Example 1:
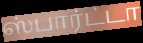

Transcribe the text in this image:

ஸ்பார்ட்டா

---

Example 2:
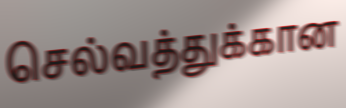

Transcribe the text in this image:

செல்வத்துக்கான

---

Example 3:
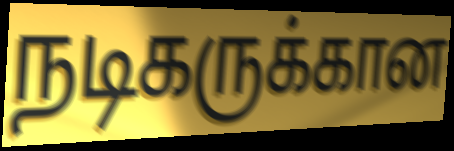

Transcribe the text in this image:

நடிகருக்கான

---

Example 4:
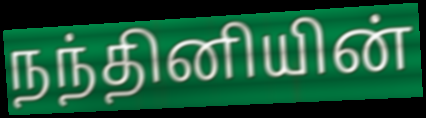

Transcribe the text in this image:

நந்தினியின்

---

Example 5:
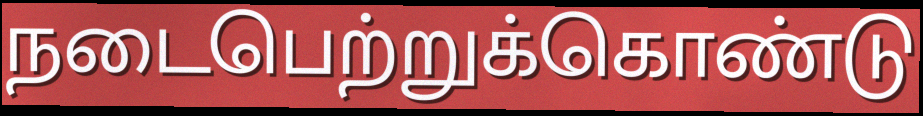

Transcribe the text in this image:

நடைபெற்றுக்கொண்டு